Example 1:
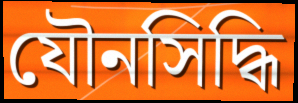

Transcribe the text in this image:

যৌনসিদ্ধি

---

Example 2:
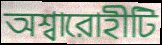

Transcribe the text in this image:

অশ্বারোহীটি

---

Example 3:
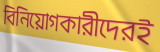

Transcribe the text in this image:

বিনিয়োগকারীদেরই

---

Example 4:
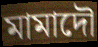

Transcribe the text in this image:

মামাদৌ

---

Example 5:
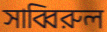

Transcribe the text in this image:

সাব্বিরুল